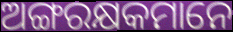
ଅଙ୍ଗରକ୍ଷକମାନେ